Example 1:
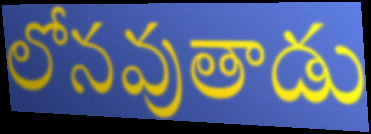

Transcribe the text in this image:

లోనవుతాడు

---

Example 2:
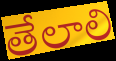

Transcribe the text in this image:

తేలాలి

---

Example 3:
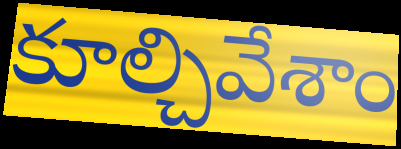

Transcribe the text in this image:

కూల్చివేశాం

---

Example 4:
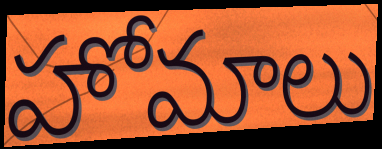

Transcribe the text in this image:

హోమాలు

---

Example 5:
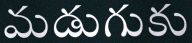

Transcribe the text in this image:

మడుగుకు